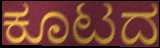
ಕೂಟದ